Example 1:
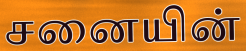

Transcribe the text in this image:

சனையின்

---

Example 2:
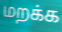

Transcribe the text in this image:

மறக்க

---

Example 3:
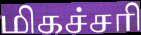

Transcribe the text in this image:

மிகச்சரி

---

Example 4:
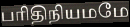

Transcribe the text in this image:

பரிதிநியமமே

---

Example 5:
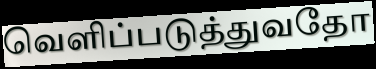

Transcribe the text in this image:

வெளிப்படுத்துவதோ